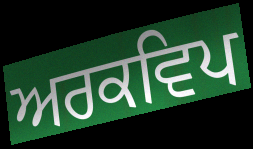
ਅਰਕਵਿਪ